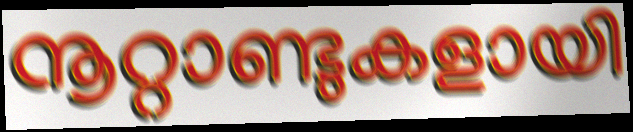
നൂറ്റാണ്ടുകളായി